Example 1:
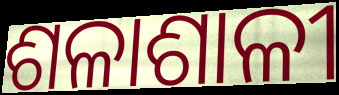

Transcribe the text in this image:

ଶଳାଶାଳୀ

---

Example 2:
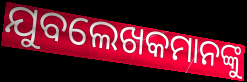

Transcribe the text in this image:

ଯୁବଲେଖକମାନଙ୍କୁ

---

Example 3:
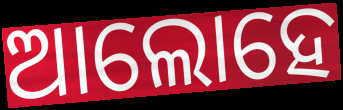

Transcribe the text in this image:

ଆଲୋହେ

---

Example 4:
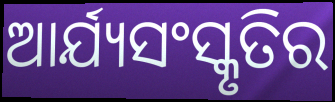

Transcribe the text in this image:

ଆର୍ଯ୍ୟସଂସ୍କୃତିର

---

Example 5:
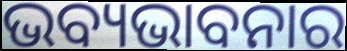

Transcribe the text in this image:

ଭବ୍ୟଭାବନାର